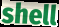
shell